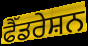
ਫੈੱਡਰੇਸ਼ਨ